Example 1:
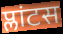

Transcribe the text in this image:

प्लांटस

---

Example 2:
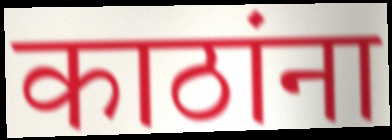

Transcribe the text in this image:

काठांना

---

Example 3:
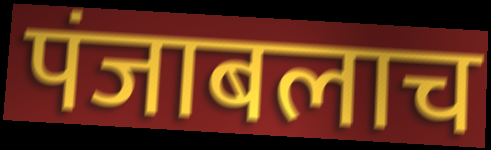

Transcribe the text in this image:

पंजाबलाच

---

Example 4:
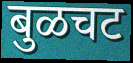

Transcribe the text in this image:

बुळचट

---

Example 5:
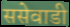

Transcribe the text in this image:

ससेवाडी